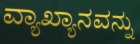
ವ್ಯಾಖ್ಯಾನವನ್ನು